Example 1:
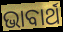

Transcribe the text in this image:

ଭାବାର୍ଥ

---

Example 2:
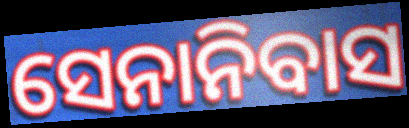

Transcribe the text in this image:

ସେନାନିବାସ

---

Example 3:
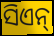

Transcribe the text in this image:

ସିଏନ୍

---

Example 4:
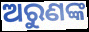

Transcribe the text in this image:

ଅରୁଣଙ୍କ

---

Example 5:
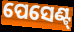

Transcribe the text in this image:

ପେସେଣ୍ଟ୍